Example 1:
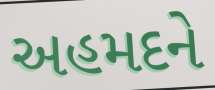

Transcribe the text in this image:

અહમદને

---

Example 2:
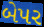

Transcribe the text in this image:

બેપર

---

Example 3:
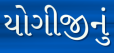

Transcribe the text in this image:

યોગીજીનું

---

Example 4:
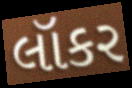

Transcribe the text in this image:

લૉકર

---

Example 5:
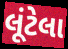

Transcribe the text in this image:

લૂંટેલા